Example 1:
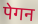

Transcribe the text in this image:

पेगन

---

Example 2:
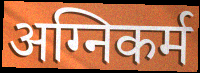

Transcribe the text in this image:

अग्निकर्म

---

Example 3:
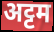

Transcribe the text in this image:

अट्टम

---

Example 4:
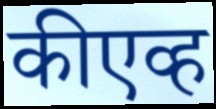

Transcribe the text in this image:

कीएव्ह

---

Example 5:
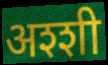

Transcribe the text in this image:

अश्शी